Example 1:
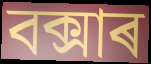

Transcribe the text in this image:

বক্সাৰ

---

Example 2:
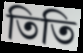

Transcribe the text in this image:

তিতি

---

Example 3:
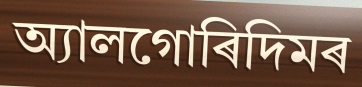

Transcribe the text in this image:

অ্যালগোৰিদিমৰ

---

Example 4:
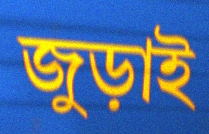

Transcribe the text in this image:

জুড়াই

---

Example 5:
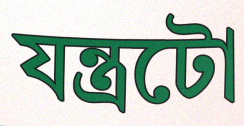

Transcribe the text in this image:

যন্ত্ৰটো